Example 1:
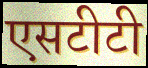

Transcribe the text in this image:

एसटीटी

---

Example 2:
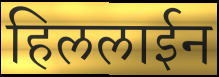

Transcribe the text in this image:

हिललाईन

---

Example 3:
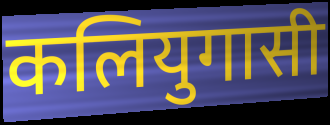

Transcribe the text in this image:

कलियुगासी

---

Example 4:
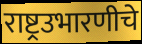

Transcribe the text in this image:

राष्ट्रउभारणीचे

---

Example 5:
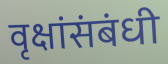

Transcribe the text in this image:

वृक्षांसंबंधी